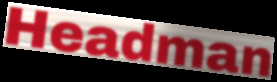
Headman